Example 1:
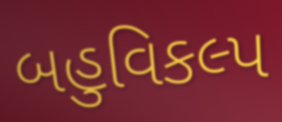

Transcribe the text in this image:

બહુવિકલ્પ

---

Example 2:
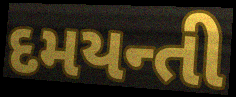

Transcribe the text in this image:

દમયન્તી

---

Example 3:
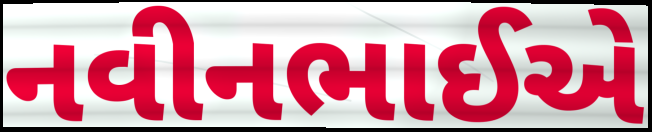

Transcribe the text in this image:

નવીનભાઈએ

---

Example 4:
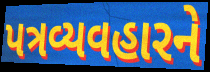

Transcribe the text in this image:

પત્રવ્યવહારને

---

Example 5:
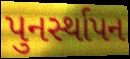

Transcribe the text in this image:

પુનર્સ્થાપન